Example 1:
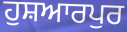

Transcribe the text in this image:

ਹੁਸ਼ਆਰਪੁਰ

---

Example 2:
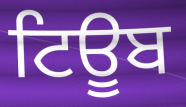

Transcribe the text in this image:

ਟਿਊੂਬ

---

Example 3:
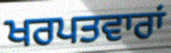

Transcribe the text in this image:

ਖਰਪਤਵਾਰਾਂ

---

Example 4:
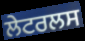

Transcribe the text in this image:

ਲੇਟਰਲਸ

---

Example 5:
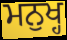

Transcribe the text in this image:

ਮਨੁਖ੍ਹ